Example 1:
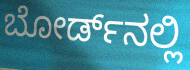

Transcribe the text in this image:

ಬೋರ್ಡ್‌ನಲ್ಲಿ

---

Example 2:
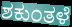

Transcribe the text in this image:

ಶಕುಂತಳೆ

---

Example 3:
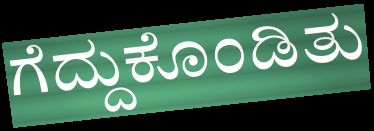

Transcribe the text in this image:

ಗೆದ್ದುಕೊಂಡಿತು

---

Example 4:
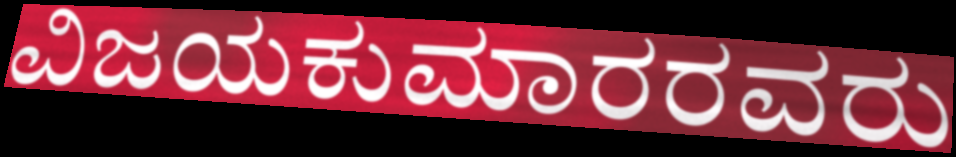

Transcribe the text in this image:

ವಿಜಯಕುಮಾರರವರು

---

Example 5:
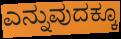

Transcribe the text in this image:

ಎನ್ನುವುದಕ್ಕೂ